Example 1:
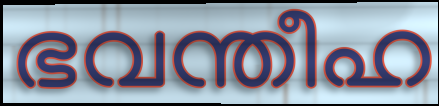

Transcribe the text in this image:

ഭവന്തീഹ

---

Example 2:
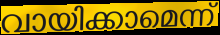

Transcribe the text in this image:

വായിക്കാമെന്ന്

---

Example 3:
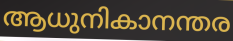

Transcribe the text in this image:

ആധുനികാനന്തര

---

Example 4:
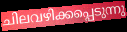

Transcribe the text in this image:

ചിലവഴിക്കപ്പെടുന്നു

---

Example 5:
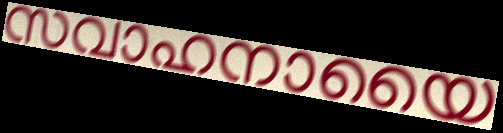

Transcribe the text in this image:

സവാഹനായൈ